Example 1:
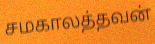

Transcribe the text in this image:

சமகாலத்தவன்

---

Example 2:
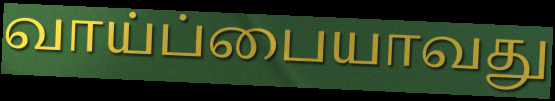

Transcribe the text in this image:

வாய்ப்பையாவது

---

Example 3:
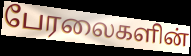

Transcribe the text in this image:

பேரலைகளின்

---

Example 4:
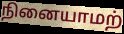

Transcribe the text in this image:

நினையாமற்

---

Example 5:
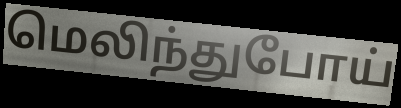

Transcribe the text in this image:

மெலிந்துபோய்